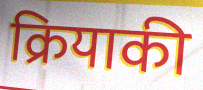
क्रियाकी